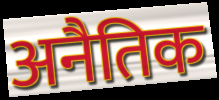
अनैतिक